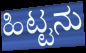
ಹಿಟ್ಟನು